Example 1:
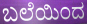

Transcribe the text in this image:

ಬಲೆಯಿಂದ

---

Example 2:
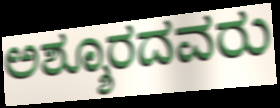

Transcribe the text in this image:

ಅಶ್ಶೂರದವರು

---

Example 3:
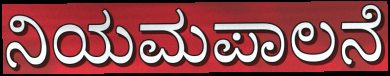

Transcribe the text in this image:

ನಿಯಮಪಾಲನೆ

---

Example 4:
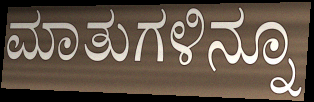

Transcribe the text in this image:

ಮಾತುಗಳಿನ್ನೂ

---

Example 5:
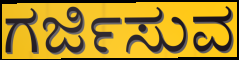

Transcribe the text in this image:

ಗರ್ಜಿಸುವ